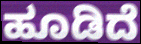
ಹೂಡಿದೆ